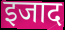
इजाद